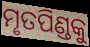
ମୃତପିଣ୍ଡକୁ